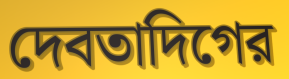
দেবতাদিগের